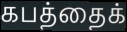
கபத்தைக்